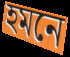
হমনে